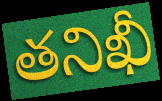
తనిఖీ